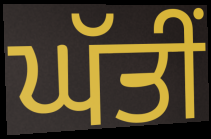
ਘੱਤੀਂ